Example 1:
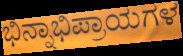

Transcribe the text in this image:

ಭಿನ್ನಾಭಿಪ್ರಾಯಗಳ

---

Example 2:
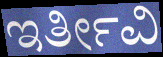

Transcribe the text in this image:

ಇರ್ತೀವಿ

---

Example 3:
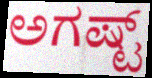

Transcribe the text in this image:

ಅಗಷ್ಟ್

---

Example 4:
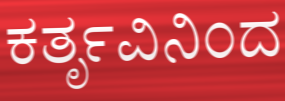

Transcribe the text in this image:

ಕರ್ತೃವಿನಿಂದ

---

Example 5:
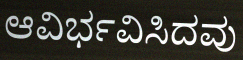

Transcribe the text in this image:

ಆವಿರ್ಭವಿಸಿದವು